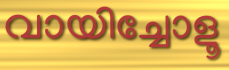
വായിച്ചോളൂ